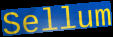
Sellum